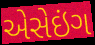
એસેઇંગ